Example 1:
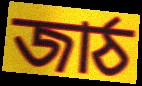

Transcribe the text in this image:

জাঠ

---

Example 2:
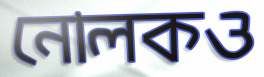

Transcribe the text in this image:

নোলকও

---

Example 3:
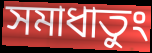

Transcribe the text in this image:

সমাধাতুং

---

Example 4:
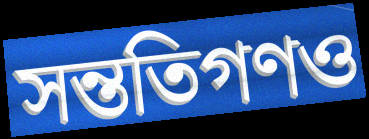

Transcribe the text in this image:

সন্ততিগণও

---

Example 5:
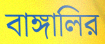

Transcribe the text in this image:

বাঙ্গালির